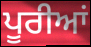
ਪੂਰੀਆਂ